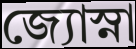
জ্যোস্না